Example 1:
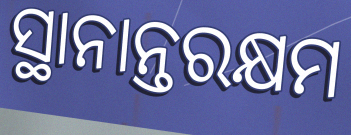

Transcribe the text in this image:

ସ୍ଥାନାନ୍ତରକ୍ଷମ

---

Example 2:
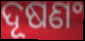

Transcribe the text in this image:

ଦୂଷଣଂ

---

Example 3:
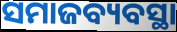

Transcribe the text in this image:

ସମାଜବ୍ୟବସ୍ଥା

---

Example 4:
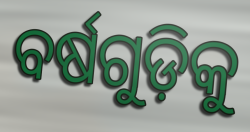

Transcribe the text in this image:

ବର୍ଷଗୁଡ଼ିକୁ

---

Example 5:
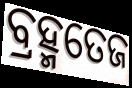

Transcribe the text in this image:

ବ୍ରହ୍ମତେଜ